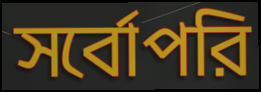
সর্বোপরি